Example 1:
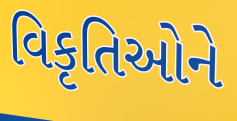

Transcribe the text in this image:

વિકૃતિઓને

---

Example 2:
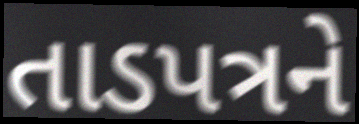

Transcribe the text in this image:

તાડપત્રને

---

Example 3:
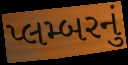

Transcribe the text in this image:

પ્લમ્બરનું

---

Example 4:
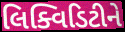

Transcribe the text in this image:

લિક્વિડિટીને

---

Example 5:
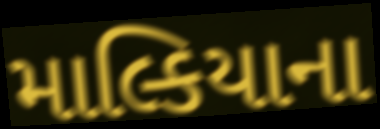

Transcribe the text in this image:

માલ્કિયાના